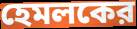
হেমলকের